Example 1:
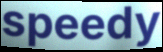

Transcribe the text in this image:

speedy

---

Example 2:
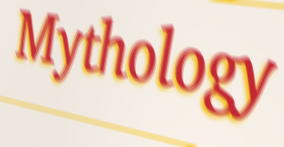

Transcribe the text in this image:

Mythology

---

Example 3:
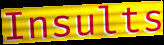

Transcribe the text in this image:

Insults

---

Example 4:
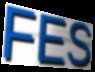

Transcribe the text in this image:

FES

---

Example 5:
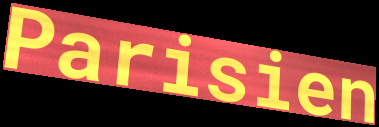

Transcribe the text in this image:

Parisien